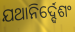
ଯଥାନିର୍ଦ୍ଦେଶଂ